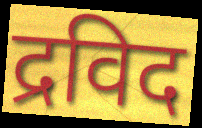
द्रविद